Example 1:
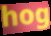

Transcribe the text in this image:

hog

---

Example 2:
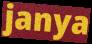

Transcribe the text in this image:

janya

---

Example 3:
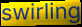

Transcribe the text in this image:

swirling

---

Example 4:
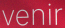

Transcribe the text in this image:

venir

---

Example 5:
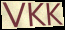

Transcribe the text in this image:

VKK